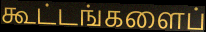
கூட்டங்களைப்